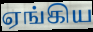
ஏங்கிய